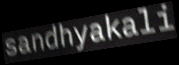
sandhyakali